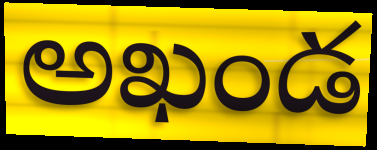
అఖండ